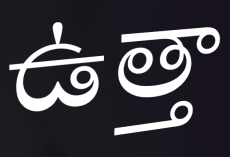
ఉత్తా